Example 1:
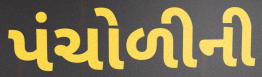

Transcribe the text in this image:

પંચોળીની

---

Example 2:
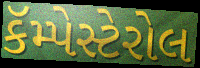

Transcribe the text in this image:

કૅમ્પેસ્ટેરોલ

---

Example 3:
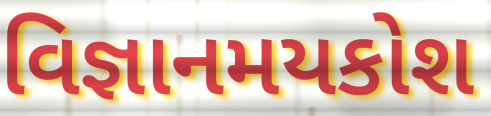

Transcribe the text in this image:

વિજ્ઞાનમયકોશ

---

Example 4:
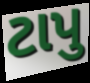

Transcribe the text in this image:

ટાપુ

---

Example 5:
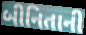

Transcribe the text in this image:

બીનિતાની